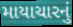
માયાચારનું